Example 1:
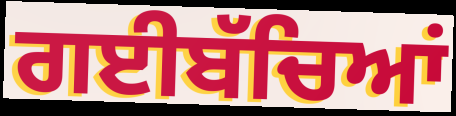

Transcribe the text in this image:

ਗਈਬੱਚਿਆਂ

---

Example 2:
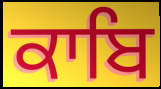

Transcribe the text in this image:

ਕਾਬਿ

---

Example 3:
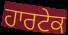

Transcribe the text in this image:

ਹਾਰਟੇਕ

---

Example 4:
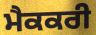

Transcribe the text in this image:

ਮੈਕਕਰੀ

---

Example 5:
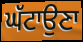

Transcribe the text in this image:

ਘੱਟਾਉਣਾ